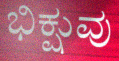
ಭಿಕ್ಷುವು